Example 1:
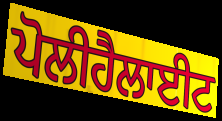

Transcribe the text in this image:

ਪੋਲੀਹੈਲਾਈਟ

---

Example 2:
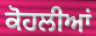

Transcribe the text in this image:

ਕੋਹਲੀਆਂ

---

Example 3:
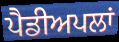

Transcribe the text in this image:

ਪੈਡੀਅਪਲਾਂ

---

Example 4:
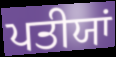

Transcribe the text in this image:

ਪਤੀਯਾਂ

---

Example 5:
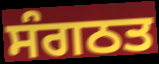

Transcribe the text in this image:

ਸੰਗਠਤ